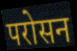
परोसन